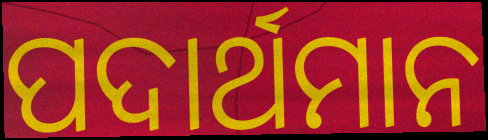
ପଦାର୍ଥମାନ